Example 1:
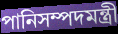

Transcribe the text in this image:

পানিসম্পদমন্ত্রী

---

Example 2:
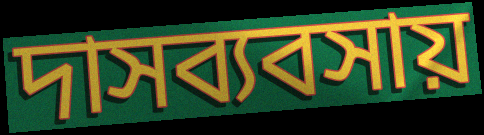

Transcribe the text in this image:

দাসব্যবসায়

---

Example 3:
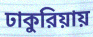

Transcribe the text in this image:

ঢাকুরিয়ায়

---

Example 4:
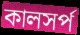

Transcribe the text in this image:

কালসর্প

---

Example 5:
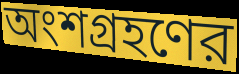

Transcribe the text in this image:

অংশগ্রহণের